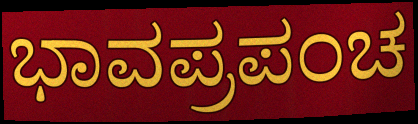
ಭಾವಪ್ರಪಂಚ